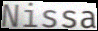
Nissa